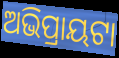
ଅଭିପ୍ରାୟଟା